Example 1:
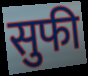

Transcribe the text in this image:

सुफी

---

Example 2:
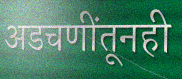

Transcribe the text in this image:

अडचणींतूनही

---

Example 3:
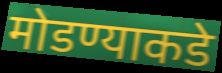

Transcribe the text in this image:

मोडण्याकडे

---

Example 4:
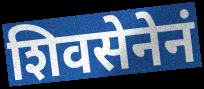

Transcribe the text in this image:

शिवसेनेनं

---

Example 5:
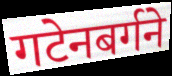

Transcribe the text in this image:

गटेनबर्गने